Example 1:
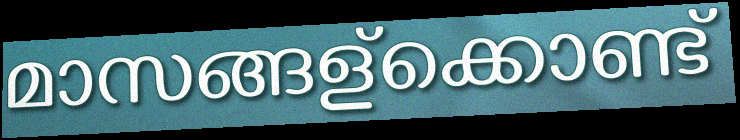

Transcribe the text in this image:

മാസങ്ങള്ക്കൊണ്ട്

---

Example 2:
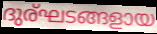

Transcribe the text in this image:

ദുര്ഘടങ്ങളായ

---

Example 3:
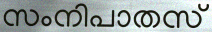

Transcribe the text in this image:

സംനിപാതസ്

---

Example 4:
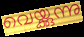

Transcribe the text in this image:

വെയ്ക്കുന്നു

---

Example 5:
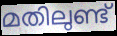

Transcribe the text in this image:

മതിലുണ്ട്